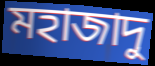
মহাজাদু